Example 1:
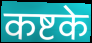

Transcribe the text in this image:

कष्टके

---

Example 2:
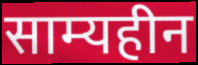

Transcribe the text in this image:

साम्यहीन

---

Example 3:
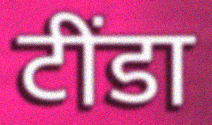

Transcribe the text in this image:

टींडा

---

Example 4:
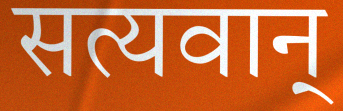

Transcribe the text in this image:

सत्यवान्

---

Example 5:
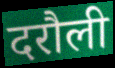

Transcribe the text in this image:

दरौली